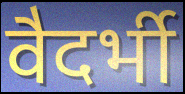
वैदर्भी